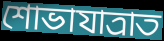
শোভাযাত্ৰাত